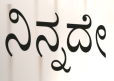
ನಿನ್ನದೇ